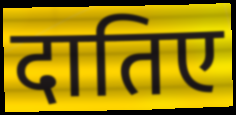
दातिए